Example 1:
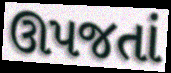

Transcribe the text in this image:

ઊપજતાં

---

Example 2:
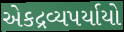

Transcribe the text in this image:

એકદ્રવ્યપર્યાયો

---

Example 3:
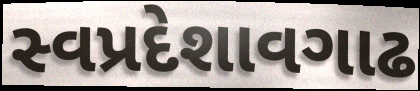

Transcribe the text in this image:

સ્વપ્રદેશાવગાઢ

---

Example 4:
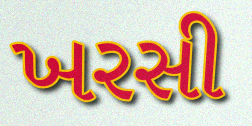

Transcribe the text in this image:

ખરસી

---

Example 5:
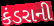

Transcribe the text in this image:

કંડરાની